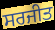
ਸਰਜੀਤ